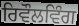
ਰਿਵੌਲਵਿੰਗ